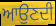
ਆਉਣਦੀ